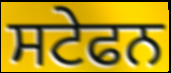
ਸਟੇਫਨ